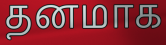
தனமாக